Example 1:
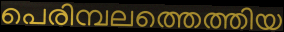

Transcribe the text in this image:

പെരിമ്പലത്തെത്തിയ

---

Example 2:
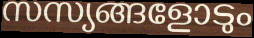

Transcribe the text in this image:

സസ്യങ്ങളോടും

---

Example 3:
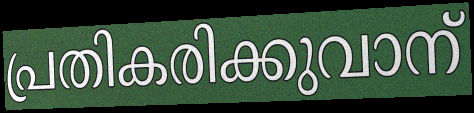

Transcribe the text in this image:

പ്രതികരിക്കുവാന്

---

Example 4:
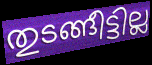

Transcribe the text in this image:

തുടങ്ങീട്ടില്ല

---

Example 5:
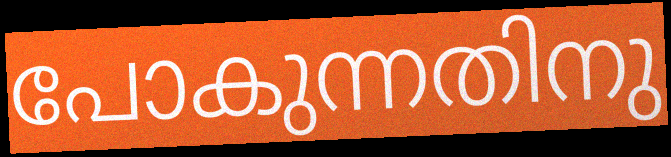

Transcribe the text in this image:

പോകുന്നതിനു